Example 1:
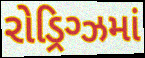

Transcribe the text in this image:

રોડ્રિગ્ઝમાં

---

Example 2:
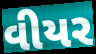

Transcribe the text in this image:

વીયર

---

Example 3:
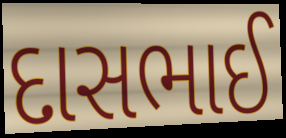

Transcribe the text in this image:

દાસભાઈ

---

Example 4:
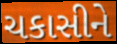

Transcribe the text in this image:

ચકાસીને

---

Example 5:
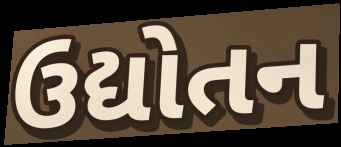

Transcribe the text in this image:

ઉદ્યોતન